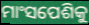
ମାଂସପେଶିକୁ